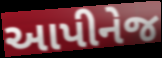
આપીનેજ